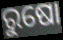
ରୁଷୋ